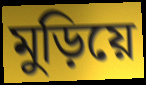
মুড়িয়ে